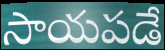
సాయపడే